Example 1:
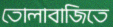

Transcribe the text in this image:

তোলাবাজিতে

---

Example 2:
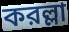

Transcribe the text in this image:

করল্লা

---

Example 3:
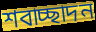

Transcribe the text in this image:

শবাচ্ছাদন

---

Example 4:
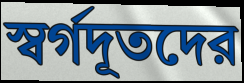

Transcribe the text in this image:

স্বর্গদূতদের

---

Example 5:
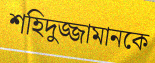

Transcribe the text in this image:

শহিদুজ্জামানকে